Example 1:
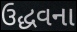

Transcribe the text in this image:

ઉદ્ધવના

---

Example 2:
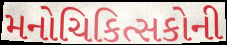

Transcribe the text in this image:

મનોચિકિત્સકોની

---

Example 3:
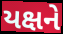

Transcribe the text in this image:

યક્ષને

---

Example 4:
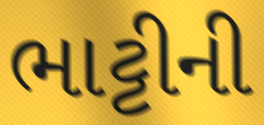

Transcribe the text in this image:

ભાટ્ટીની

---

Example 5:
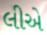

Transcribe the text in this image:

લીએ